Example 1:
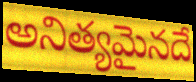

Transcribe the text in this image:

అనిత్యమైనదే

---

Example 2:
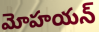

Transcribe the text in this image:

మోహయన్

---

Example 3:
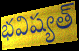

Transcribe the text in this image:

భవిష్యత్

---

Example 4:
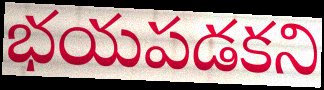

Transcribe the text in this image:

భయపడకని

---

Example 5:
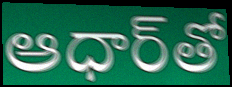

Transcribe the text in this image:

ఆధార్‌తో